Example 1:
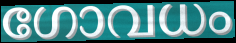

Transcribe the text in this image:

ഗോവധം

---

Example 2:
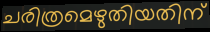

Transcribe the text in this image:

ചരിത്രമെഴുതിയതിന്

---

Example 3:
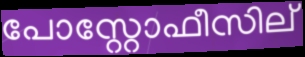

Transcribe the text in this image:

പോസ്റ്റോഫീസില്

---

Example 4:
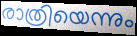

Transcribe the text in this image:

രാത്രിയെന്നും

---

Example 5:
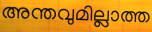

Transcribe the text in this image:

അന്തവുമില്ലാത്ത